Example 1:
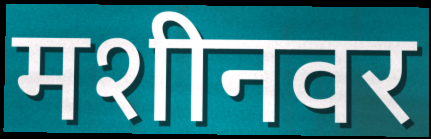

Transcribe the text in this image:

मशीनवर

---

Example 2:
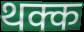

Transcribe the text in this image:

थक्क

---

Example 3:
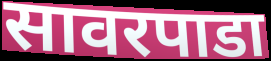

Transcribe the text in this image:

सावरपाडा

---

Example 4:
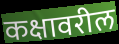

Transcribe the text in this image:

कक्षावरील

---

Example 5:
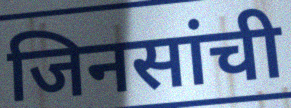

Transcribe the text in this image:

जिनसांची